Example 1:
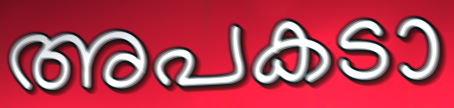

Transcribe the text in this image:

അപകടാ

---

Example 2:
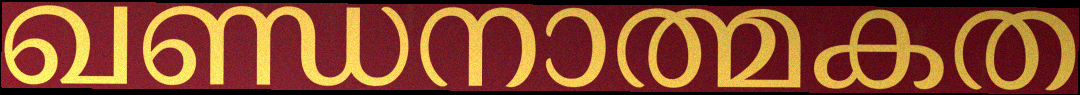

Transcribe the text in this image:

ഖണ്ഡനാത്മകത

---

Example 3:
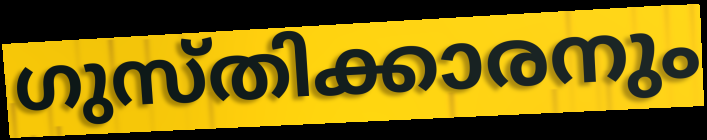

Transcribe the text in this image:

ഗുസ്തിക്കാരനും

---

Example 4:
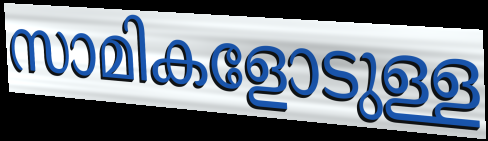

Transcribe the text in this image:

സാമികളോടുള്ള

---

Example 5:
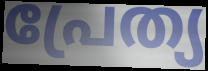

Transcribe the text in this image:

പ്രേത്യ